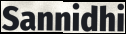
Sannidhi